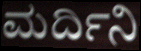
ಮರ್ದಿನಿ